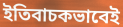
ইতিবাচকভাবেই